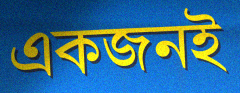
একজনই